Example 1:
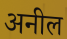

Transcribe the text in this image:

अनील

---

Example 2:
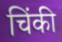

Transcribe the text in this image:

चिंकी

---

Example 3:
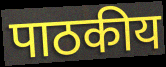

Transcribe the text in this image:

पाठकीय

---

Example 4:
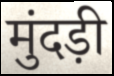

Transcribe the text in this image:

मुंदड़ी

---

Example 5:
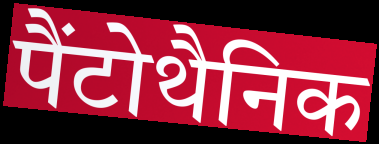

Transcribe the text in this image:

पैंटोथैनिक